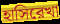
হাসিরেখা